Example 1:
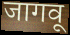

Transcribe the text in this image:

जागवू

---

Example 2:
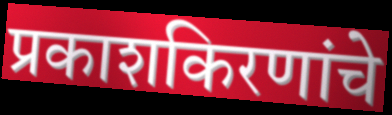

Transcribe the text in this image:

प्रकाशकिरणांचे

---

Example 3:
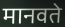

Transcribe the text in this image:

मानवते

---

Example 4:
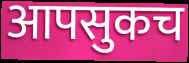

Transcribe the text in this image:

आपसुकच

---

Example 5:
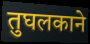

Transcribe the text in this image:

तुघलकाने